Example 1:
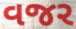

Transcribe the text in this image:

વજર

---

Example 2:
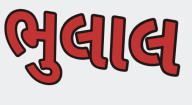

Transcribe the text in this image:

ભુલાલ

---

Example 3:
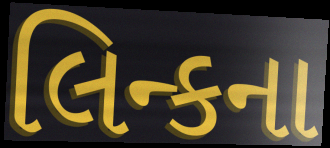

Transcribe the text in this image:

લિન્કના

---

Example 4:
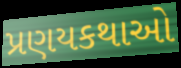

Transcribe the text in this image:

પ્રણયકથાઓ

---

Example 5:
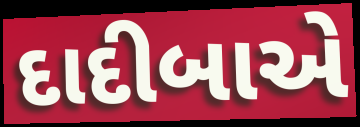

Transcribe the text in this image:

દાદીબાએ